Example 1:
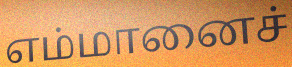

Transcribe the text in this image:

எம்மானைச்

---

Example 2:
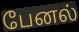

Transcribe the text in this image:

பேனல்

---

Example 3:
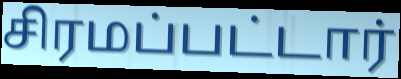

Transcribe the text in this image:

சிரமப்பட்டார்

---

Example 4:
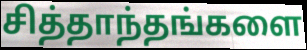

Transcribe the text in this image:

சித்தாந்தங்களை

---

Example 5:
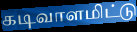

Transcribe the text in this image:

கடிவாளமிட்டு